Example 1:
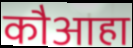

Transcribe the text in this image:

कौआहा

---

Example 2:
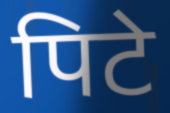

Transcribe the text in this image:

पिटे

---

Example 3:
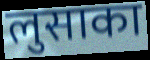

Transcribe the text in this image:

लुसाका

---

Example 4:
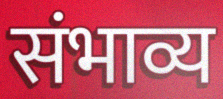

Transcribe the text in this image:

संभाव्य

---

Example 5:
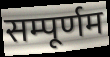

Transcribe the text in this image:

सम्पूर्णम